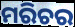
ମରିଚର